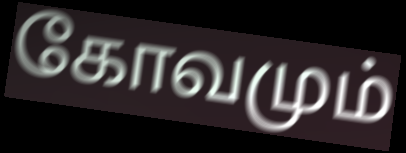
கோவமும்